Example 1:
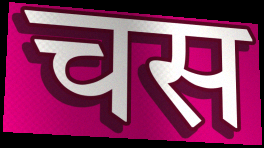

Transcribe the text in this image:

चस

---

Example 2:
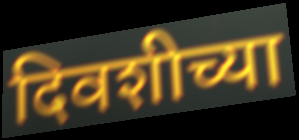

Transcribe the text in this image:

दिवशीच्या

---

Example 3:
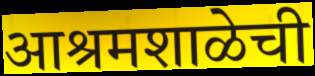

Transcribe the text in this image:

आश्रमशाळेची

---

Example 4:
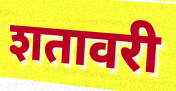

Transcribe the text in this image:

शतावरी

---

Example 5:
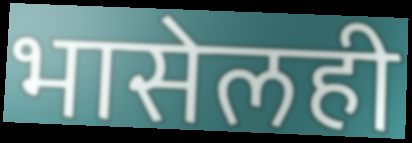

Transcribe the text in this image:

भासेलही